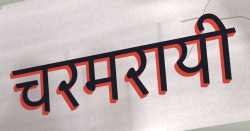
चरमरायी